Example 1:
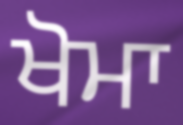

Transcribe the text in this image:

ਖੋਮਾ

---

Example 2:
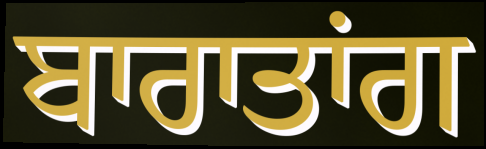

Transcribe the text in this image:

ਬਾਰਾਤਾਂਗ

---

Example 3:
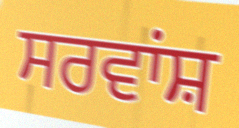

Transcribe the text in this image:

ਸਰਵਾਂਸ਼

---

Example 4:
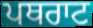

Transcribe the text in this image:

ਪਥਰਾਟ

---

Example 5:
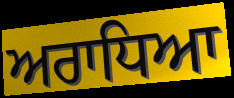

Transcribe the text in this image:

ਅਰਾਧਿਆ